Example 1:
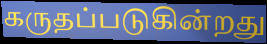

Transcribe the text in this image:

கருதப்படுகின்றது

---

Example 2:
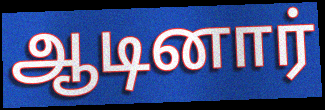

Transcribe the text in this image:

ஆடினார்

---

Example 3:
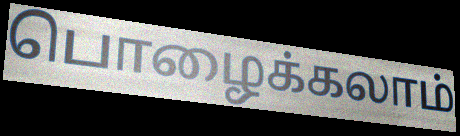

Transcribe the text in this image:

பொழைக்கலாம்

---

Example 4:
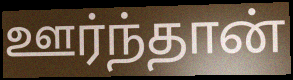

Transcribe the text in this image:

ஊர்ந்தான்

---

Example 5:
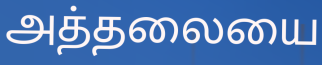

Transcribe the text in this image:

அத்தலையை